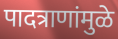
पादत्राणांमुळे